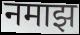
नमाझ